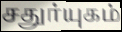
சதுர்யுகம்